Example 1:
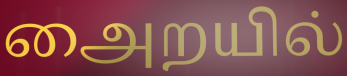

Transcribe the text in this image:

அைறயில்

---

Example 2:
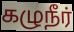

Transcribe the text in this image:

கழுநீர்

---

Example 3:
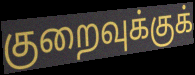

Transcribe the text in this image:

குறைவுக்குக்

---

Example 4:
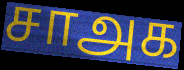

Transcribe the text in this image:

சாஅக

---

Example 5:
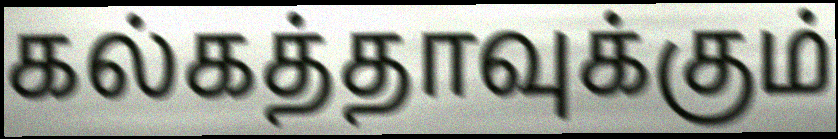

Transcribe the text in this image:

கல்கத்தாவுக்கும்